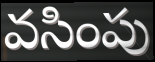
వసింపు